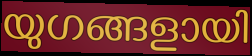
യുഗങ്ങളായി